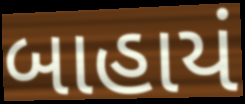
બાહાયં